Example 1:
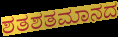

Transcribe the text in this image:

ಶತಶತಮಾನದ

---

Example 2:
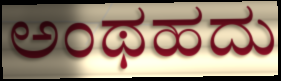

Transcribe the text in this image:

ಅಂಥಹದು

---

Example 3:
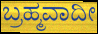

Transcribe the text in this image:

ಬ್ರಹ್ಮವಾದೀ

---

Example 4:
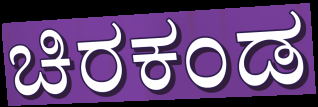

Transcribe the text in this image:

ಚಿರಕಂಡ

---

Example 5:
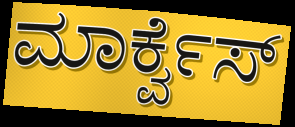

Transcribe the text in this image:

ಮಾರ್ಕ್ವೆಸ್